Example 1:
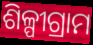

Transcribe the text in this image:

ଶିଳ୍ପୀଗ୍ରାମ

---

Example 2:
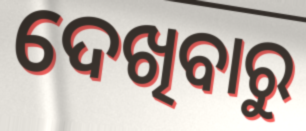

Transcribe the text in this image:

ଦେଖିବାରୁ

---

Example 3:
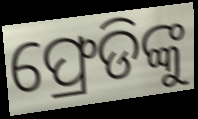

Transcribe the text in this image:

ଫ୍ରେଡିଙ୍କୁ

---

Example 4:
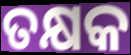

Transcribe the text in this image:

ତକ୍ଷକ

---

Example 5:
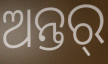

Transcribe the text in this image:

ଅନ୍ତର୍